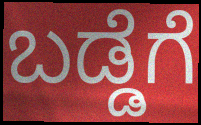
ಬಡ್ಡೆಗೆ